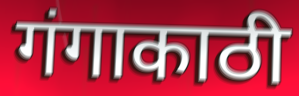
गंगाकाठी